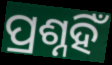
ପ୍ରଶ୍ନହିଁ